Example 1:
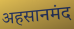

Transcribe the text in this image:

अहसानमंद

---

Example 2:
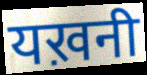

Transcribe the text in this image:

यख़नी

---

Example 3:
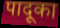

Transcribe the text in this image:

पादूका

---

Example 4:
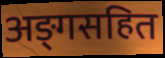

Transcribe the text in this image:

अङ्गसहित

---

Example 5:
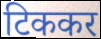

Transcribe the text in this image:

टिककर